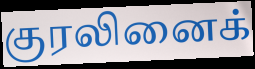
குரலினைக்